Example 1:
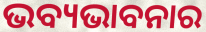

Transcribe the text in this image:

ଭବ୍ୟଭାବନାର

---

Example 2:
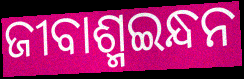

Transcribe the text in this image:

ଜୀବାଶ୍ମଇନ୍ଧନ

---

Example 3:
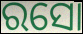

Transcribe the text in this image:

ରସୋ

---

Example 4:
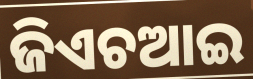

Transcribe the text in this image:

ଜିଏଚଆଇ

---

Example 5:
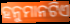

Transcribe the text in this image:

ହନୁମାନଟିଏ